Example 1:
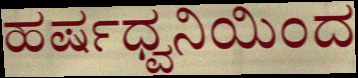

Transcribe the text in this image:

ಹರ್ಷಧ್ವನಿಯಿಂದ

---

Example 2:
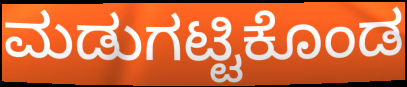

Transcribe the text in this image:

ಮಡುಗಟ್ಟಿಕೊಂಡ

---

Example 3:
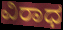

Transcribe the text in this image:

ವಿರಾಧ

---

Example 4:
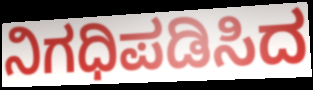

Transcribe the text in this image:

ನಿಗಧಿಪಡಿಸಿದ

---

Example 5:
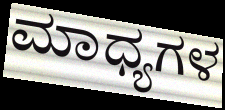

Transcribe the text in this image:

ಮಾಧ್ಯಗಳ